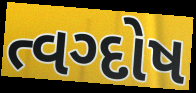
ત્વગ્દોષ